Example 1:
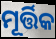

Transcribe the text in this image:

ମୂର୍ତ୍ତିକ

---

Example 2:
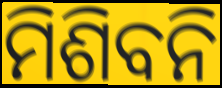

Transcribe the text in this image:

ମିଶିବନି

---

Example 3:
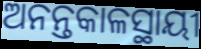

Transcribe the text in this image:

ଅନନ୍ତକାଳସ୍ଥାୟୀ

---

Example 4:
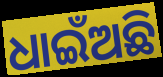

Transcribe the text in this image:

ଧାଇଁଅଛି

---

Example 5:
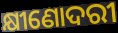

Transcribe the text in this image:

କ୍ଷୀଣୋଦରୀ